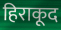
हिराकूद